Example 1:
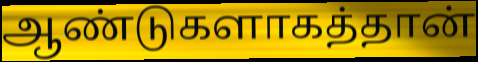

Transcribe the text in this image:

ஆண்டுகளாகத்தான்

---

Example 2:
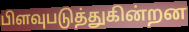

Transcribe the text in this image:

பிளவுபடுத்துகின்றன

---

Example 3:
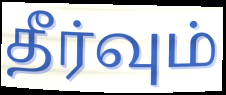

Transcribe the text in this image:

தீர்வும்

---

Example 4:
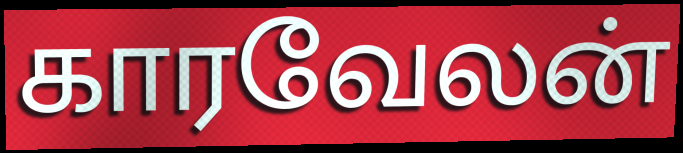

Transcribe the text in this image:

காரவேலன்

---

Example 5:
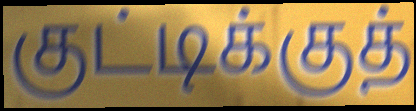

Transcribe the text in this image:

குட்டிக்குத்